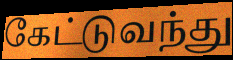
கேட்டுவந்து